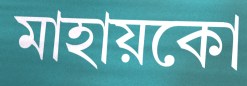
মাহায়কো